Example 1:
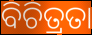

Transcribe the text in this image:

ବିଚିତ୍ରତା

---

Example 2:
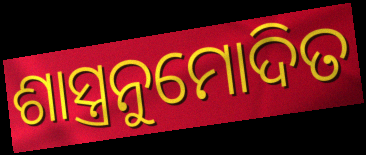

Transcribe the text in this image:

ଶାସ୍ତ୍ରନୁମୋଦିତ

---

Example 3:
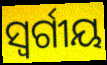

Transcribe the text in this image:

ସ୍ୱର୍ଗୀୟ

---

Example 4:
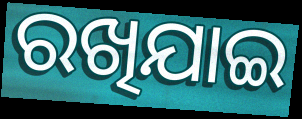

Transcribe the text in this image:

ରଖିଯାଇ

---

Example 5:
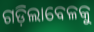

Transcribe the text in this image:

ଗଡ଼ିଲାବେଳକୁ